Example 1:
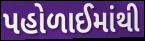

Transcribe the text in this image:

પહોળાઈમાંથી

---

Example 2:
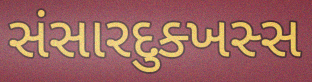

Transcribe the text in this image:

સંસારદુક્ખસ્સ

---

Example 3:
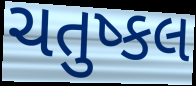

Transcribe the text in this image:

ચતુષ્કલ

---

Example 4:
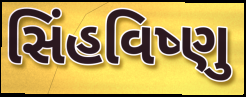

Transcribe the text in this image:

સિંહવિષ્ણુ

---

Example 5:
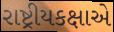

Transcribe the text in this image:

રાષ્ટ્રીયકક્ષાએ